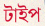
টাইপ